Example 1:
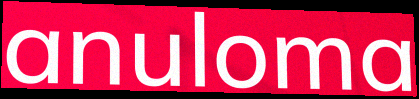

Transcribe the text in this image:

anuloma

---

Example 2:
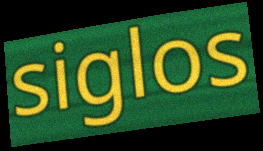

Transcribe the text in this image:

siglos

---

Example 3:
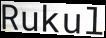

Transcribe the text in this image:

Rukul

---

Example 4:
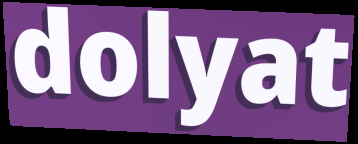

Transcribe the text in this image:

dolyat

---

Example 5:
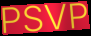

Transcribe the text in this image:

PSVP